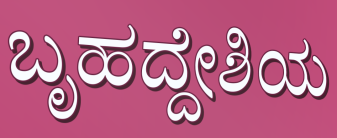
ಬೃಹದ್ದೇಶಿಯ